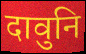
दावुनि